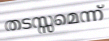
തടസ്സമെന്ന്